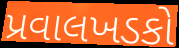
પ્રવાલખડકો